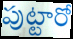
పుట్టారో